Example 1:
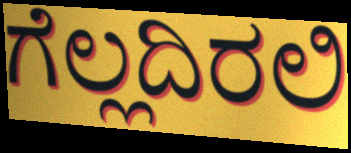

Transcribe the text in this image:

ಗೆಲ್ಲದಿರಲಿ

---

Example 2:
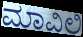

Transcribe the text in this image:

ಮಾವಿಲಿ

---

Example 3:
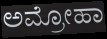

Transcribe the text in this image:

ಅಮ್ರೋಹಾ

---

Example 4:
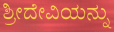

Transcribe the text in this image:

ಶ್ರೀದೇವಿಯನ್ನು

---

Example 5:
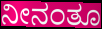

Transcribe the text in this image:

ನೀನಂತೂ